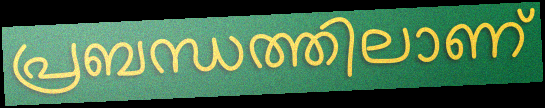
പ്രബന്ധത്തിലാണ്